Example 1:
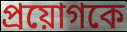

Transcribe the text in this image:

প্রয়োগকে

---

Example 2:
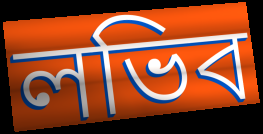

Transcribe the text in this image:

লভিব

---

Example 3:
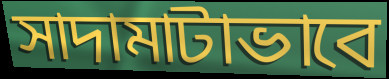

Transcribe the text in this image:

সাদামাটাভাবে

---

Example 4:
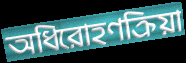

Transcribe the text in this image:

অধিরোহণক্রিয়া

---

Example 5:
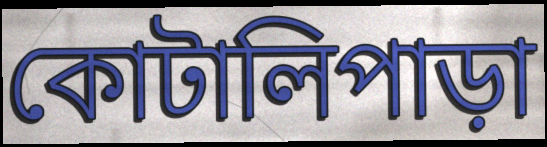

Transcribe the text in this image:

কোটালিপাড়া